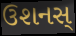
ઉશનસ્